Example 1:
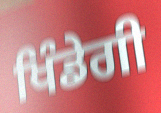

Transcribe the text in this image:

ਖਿੰਡੇਗੀ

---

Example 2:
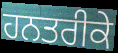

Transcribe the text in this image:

ਹਨਤਰੀਕੇ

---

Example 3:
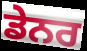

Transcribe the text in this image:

ਡੇਨਰ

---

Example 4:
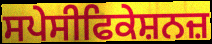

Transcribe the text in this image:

ਸਪੇਸੀਫਿਕੇਸ਼ਨਜ਼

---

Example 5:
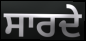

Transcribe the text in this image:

ਸਾਰਦੇ